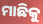
ମାଛିକୁ